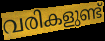
വരികളുണ്ട്